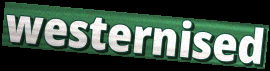
westernised